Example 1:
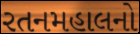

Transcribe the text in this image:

રતનમહાલનો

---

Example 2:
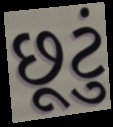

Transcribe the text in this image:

છૂટું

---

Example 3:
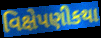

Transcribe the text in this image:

વિક્ષેપણીકથા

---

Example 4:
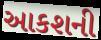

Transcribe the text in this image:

આકશની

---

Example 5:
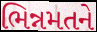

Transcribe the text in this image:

ભિન્નમતને